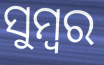
ସୁମ୍ବର